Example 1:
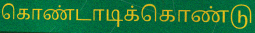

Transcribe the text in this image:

கொண்டாடிக்கொண்டு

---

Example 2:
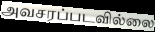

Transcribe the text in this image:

அவசரப்படவில்லை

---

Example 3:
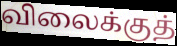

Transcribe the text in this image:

விலைக்குத்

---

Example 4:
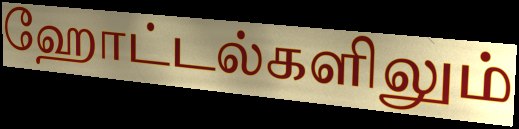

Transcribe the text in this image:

ஹோட்டல்களிலும்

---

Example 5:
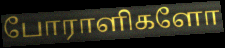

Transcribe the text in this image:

போராளிகளோ